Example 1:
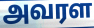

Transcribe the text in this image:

அவரள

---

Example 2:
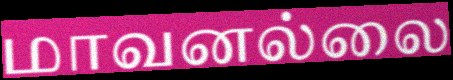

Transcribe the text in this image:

மாவனல்லை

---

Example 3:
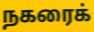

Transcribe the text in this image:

நகரைக்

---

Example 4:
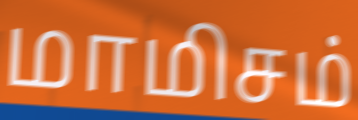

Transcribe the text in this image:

மாமிசம்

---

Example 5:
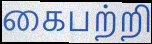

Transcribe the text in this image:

கைபற்றி